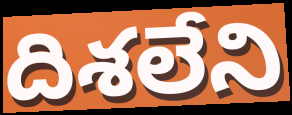
దిశలేని